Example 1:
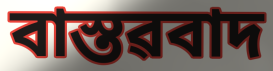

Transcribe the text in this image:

বাস্তৱবাদ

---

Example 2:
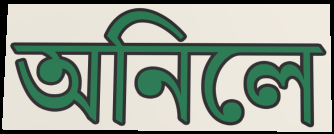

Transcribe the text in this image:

অনিলে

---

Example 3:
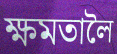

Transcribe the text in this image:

ক্ষমতালৈ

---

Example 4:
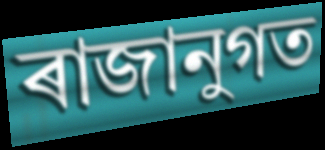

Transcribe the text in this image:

ৰাজানুগত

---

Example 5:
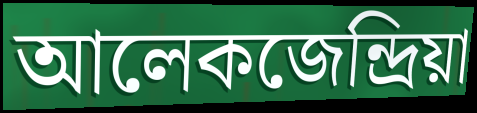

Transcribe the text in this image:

আলেকজেন্দ্ৰিয়া